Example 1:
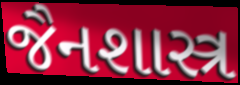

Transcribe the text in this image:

જૈનશાસ્ત્ર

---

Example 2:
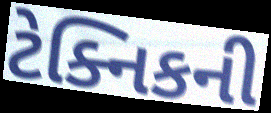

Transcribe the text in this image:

ટેક્નિકની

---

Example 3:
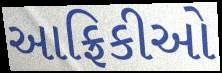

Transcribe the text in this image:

આફ્રિકીઓ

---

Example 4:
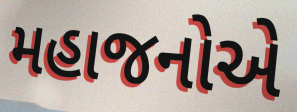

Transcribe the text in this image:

મહાજનોએ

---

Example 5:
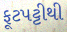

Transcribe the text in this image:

ફૂટપટ્ટીથી